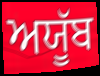
ਅਯੂੱਬ